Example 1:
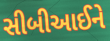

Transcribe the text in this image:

સીબીઆઈને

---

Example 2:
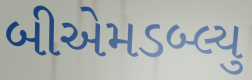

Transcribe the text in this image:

બીએમડબ્લ્યુ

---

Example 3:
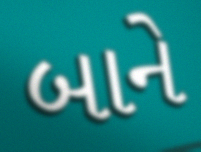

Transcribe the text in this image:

બાને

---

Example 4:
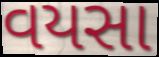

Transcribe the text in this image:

વયસા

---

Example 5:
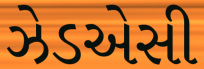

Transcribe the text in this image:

ઝેડએસી